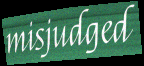
misjudged